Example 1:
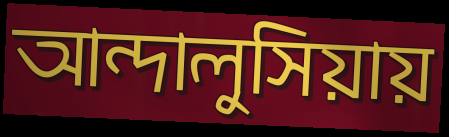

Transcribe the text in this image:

আন্দালুসিয়ায়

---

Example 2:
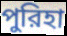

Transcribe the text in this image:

পুরিহা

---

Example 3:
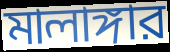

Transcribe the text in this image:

মালাঙ্গার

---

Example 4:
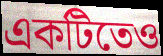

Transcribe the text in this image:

একটিতেও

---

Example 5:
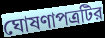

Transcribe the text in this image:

ঘোষণাপত্রটির